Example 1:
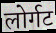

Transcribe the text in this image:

लोर्गट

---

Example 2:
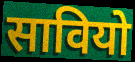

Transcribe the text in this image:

सावियो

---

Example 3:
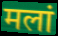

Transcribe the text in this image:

मलां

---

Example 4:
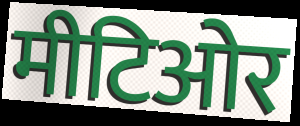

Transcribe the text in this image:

मीटिओर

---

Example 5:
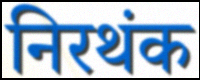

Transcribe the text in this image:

निरथंक